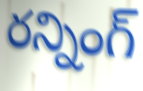
రన్నింగ్